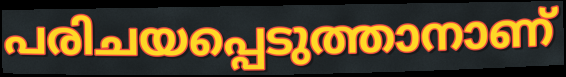
പരിചയപ്പെടുത്താനാണ്